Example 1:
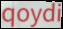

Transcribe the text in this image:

qoydi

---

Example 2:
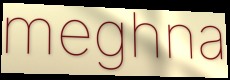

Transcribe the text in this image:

meghna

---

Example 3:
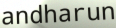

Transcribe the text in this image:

andharun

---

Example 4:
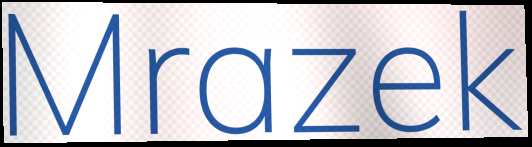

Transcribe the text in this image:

Mrazek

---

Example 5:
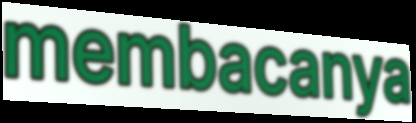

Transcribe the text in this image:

membacanya